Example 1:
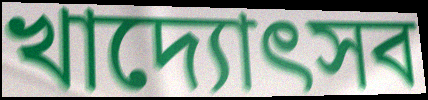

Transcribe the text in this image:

খাদ্যোৎসব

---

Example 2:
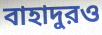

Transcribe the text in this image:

বাহাদুরও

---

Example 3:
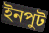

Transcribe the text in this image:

ইনপুট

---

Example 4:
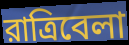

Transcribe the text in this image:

রাত্রিবেলা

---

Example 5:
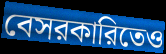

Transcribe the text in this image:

বেসরকারিতেও